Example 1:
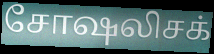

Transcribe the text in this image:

சோஷலிசக்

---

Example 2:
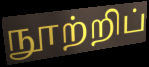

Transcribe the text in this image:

நூற்றிப்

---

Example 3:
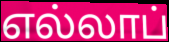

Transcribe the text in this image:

எல்லாப்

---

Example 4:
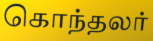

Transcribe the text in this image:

கொந்தலர்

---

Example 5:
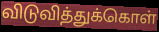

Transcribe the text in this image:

விடுவித்துக்கொள்